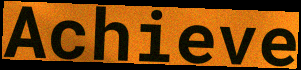
Achieve